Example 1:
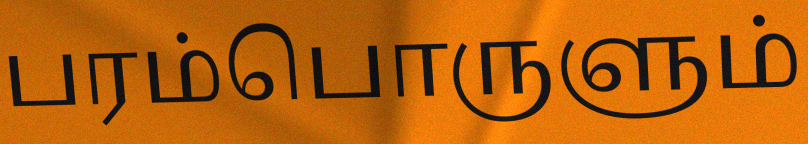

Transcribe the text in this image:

பரம்பொருளும்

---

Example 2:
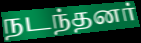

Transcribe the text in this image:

நடந்தனர்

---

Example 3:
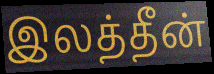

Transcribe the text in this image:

இலத்தீன்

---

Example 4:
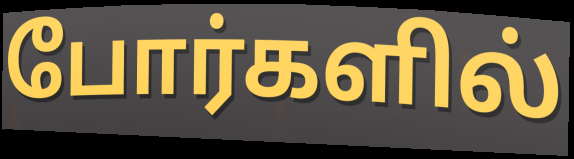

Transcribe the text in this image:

போர்களில்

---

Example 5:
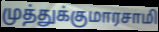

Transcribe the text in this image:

முத்துக்குமாரசாமி